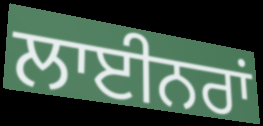
ਲਾਈਨਰਾਂ